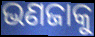
ଭଣଜାକୁ